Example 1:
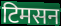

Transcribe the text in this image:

टिमसन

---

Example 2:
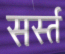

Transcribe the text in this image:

सर्स्त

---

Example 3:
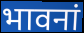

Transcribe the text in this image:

भावनां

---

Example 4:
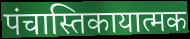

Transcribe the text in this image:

पंचास्तिकायात्मक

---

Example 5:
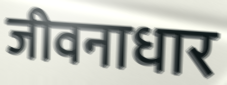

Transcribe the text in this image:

जीवनाधार